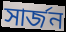
সার্জন